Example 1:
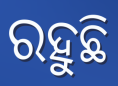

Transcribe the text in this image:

ରହୁଛି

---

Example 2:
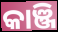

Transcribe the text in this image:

କାଞ୍ଜି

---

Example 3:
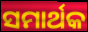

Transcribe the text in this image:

ସମାର୍ଥକ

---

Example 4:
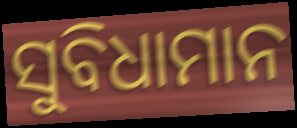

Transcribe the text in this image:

ସୁବିଧାମାନ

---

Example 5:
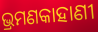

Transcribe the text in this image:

ଭ୍ରମଣକାହାଣୀ